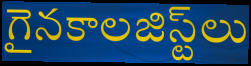
గైనకాలజిస్ట్‌లు